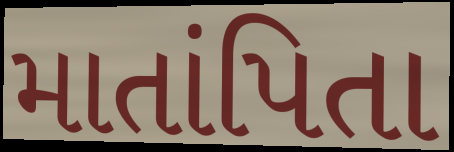
માતાંપિતા